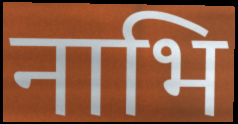
नाभि